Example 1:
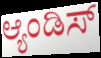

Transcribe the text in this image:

ಆ್ಯಂಡಿಸ್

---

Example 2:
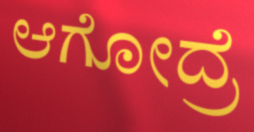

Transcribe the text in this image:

ಆಗೋದ್ರೆ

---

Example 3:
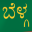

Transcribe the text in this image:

ಬೆಳ್ಗ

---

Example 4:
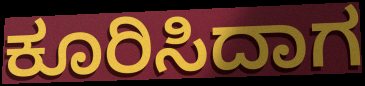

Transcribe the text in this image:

ಕೂರಿಸಿದಾಗ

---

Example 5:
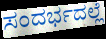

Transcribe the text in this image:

ಸಂದರ್ಭದಲ್ಲೆ